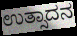
ಉತ್ಸಾದನ